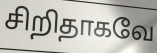
சிறிதாகவே